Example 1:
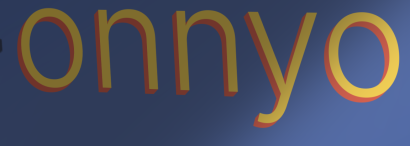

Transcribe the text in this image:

onnyo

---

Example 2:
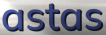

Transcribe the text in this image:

astas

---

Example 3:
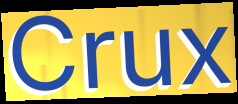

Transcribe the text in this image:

Crux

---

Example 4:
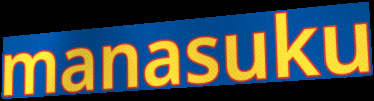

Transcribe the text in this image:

manasuku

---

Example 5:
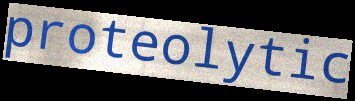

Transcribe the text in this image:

proteolytic